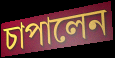
চাপালেন